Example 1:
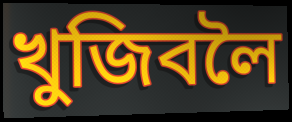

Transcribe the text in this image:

খুজিবলৈ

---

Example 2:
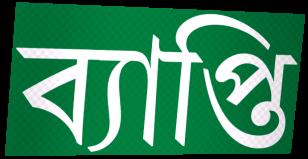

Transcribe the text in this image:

ব্যাপ্তি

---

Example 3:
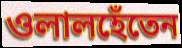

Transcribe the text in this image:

ওলালহেঁতেন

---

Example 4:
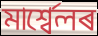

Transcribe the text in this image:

মাৰ্শ্বেলৰ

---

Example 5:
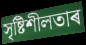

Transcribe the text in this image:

সৃষ্টিশীলতাৰ